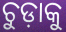
ଚୁଡ଼ାକୁ